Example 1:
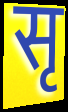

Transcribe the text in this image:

सृ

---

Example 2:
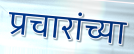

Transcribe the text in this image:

प्रचारांच्या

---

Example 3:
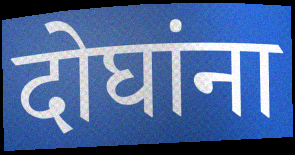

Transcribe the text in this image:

दोघांना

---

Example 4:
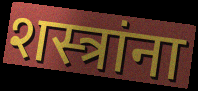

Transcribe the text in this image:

शस्त्रांना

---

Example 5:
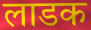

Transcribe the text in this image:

लाडक